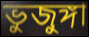
ভুজুঙ্গা